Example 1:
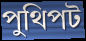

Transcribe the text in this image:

পুথিপট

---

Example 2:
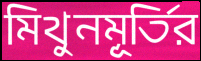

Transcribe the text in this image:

মিথুনমূর্তির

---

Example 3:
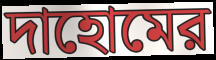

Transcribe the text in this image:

দাহোমের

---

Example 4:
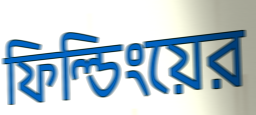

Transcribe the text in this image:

ফিল্ডিংয়ের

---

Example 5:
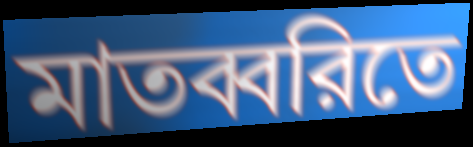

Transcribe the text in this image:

মাতব্বরিতে